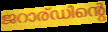
ജറാര്ഡിന്റെ